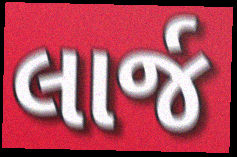
લાર્જ